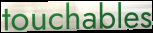
touchables